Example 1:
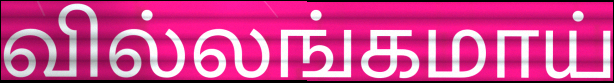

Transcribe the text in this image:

வில்லங்கமாய்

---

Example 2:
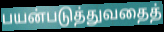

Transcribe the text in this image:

பயன்படுத்துவதைத்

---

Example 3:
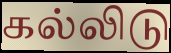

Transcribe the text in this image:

கல்லிடு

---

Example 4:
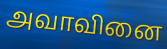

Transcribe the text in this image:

அவாவினை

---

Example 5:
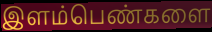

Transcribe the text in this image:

இளம்பெண்களை